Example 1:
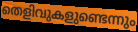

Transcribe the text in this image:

തെളിവുകളുണ്ടെന്നും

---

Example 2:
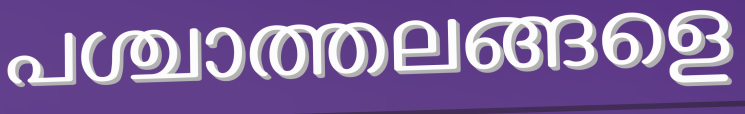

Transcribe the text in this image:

പശ്ചാത്തലങ്ങളെ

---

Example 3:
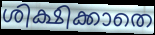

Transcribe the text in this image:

ശിക്ഷിക്കാതെ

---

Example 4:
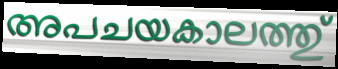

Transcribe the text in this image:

അപചയകാലത്തു്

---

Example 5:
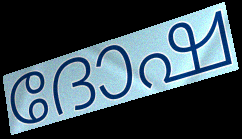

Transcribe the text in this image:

ദോഷ